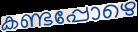
കണ്ടപ്പോഴെ